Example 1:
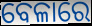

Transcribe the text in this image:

ବେଳାରେ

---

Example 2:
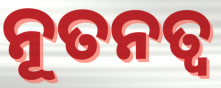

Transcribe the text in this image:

ନୂତନତ୍ୱ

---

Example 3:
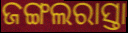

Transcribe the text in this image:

ଜଙ୍ଗଲରାସ୍ତା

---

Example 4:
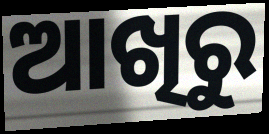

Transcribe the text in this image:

ଆଖିରୁ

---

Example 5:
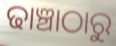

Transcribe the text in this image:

ଢାଞ୍ଚାଠାରୁ